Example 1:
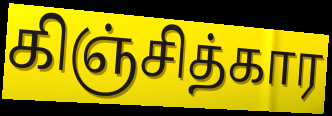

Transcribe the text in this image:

கிஞ்சித்கார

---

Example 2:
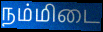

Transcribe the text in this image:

நம்மிடை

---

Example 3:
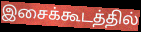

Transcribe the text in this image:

இசைக்கூடத்தில்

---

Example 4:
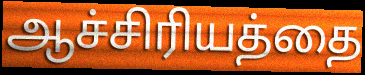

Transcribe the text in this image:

ஆச்சிரியத்தை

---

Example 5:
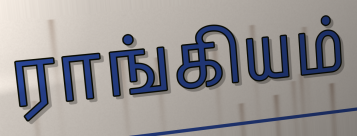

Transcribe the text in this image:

ராங்கியம்